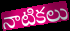
నాటికలు